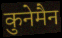
कुनेमैन